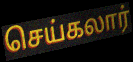
செய்கலார்